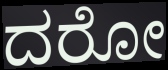
ದರೋ